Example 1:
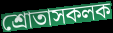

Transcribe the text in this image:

শ্ৰোতাসকলক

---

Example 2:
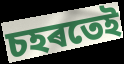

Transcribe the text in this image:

চহৰতেই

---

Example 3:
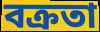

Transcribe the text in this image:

বক্ৰতা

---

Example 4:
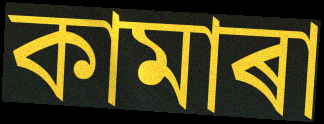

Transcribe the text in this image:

কামাৰা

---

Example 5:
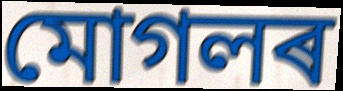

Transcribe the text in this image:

মোগলৰ